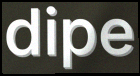
dipe